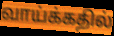
வாய்க்கதில்